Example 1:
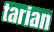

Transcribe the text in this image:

tarian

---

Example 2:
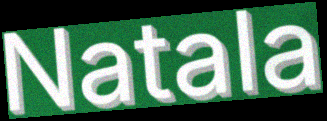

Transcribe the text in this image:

Natala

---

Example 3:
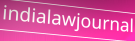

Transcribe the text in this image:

indialawjournal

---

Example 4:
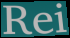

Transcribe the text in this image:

Rei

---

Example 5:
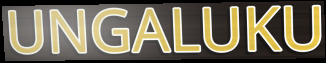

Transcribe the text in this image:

UNGALUKU